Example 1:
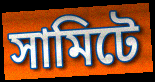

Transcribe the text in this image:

সামিটে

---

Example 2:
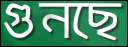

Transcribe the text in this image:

গুনছে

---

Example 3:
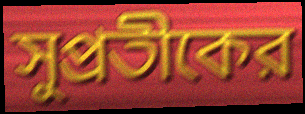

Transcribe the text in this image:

সুপ্রতীকের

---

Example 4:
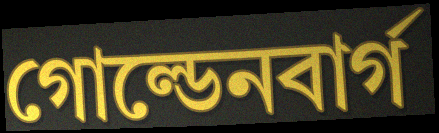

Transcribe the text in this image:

গোল্ডেনবার্গ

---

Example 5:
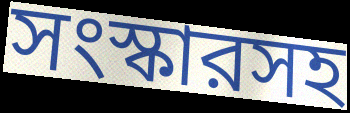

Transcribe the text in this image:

সংস্কারসহ